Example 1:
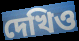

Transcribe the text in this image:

দেখিও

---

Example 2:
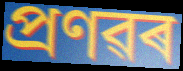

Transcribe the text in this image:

প্ৰণৱৰ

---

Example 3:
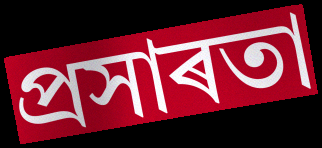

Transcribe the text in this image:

প্ৰসাৰতা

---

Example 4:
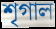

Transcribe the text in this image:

শৃগাল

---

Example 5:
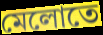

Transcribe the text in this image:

মেলোতে